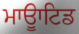
ਮਾਊਾਟਿਡ